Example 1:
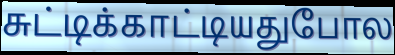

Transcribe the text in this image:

சுட்டிக்காட்டியதுபோல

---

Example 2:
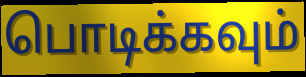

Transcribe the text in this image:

பொடிக்கவும்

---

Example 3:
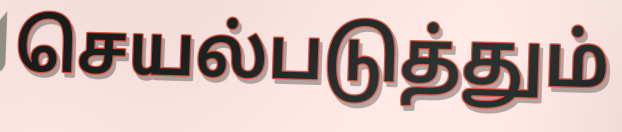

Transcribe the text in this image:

செயல்படுத்தும்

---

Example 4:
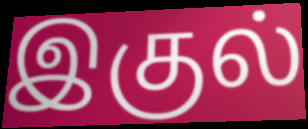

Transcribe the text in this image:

இகுல்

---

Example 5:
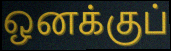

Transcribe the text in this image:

ஒனக்குப்